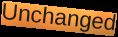
Unchanged